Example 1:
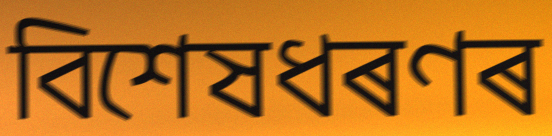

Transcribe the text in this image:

বিশেষধৰণৰ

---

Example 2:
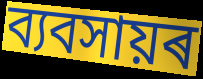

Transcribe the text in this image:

ব্যবসায়ৰ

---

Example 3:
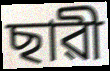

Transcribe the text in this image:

ছাৱী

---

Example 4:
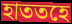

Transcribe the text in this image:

হাততহে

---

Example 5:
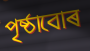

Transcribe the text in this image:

পৃষ্ঠাবোৰ